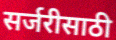
सर्जरीसाठी